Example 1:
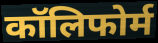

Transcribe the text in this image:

कॉलिफोर्म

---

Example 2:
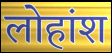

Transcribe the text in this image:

लोहांश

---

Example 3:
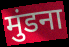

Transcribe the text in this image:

मुंडना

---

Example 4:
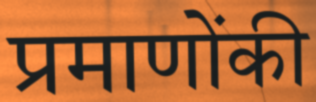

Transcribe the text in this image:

प्रमाणोंकी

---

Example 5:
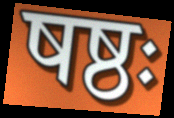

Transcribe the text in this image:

षष्ठः